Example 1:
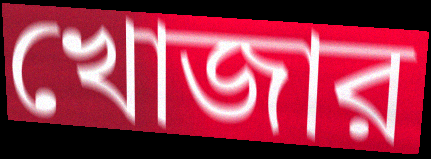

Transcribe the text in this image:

খোজার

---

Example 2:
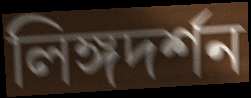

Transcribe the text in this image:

লিঙ্গদর্শন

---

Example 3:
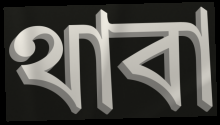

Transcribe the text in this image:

থাবা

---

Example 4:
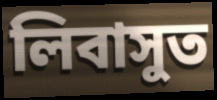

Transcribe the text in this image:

লিবাসুত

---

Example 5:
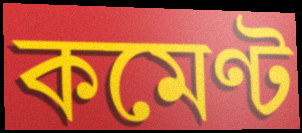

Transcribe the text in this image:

কমেণ্ট